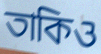
তাকিও